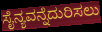
ಸೈನ್ಯವನ್ನೆದುರಿಸಲು